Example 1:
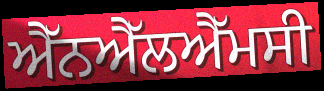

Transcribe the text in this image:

ਐੱਨਐੱਲਐੱਮਸੀ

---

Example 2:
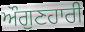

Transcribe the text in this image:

ਔਗੁਣਹਾਰੀ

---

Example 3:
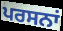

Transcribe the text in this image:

ਪਰਸਨਾਂ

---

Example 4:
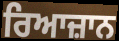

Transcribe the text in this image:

ਰਿਆਜ਼ਾਨ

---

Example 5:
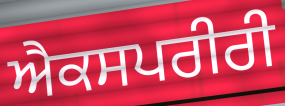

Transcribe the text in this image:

ਐਕਸਪਰੀਰੀ